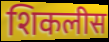
शिकलीस